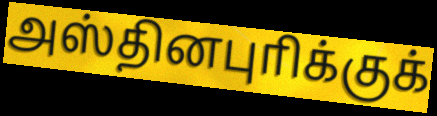
அஸ்தினபுரிக்குக்